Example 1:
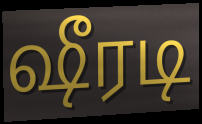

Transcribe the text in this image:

ஷீரடி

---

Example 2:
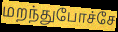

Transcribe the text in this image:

மறந்துபோச்சே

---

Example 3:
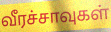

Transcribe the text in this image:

வீரச்சாவுகள்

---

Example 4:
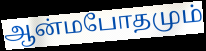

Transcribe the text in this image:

ஆன்மபோதமும்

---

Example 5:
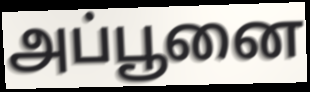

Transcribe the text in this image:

அப்பூனை